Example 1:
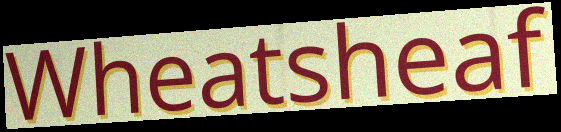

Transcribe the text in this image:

Wheatsheaf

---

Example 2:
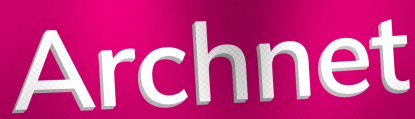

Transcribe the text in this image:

Archnet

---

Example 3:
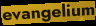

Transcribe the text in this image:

evangelium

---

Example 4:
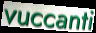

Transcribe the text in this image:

vuccanti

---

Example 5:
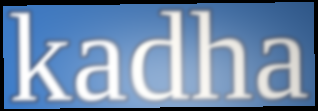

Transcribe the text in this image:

kadha